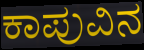
ಕಾಪುವಿನ